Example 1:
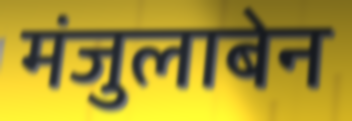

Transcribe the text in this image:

मंजुलाबेन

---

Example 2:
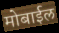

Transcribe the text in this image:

मोबाईल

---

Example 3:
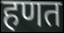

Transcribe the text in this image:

हणत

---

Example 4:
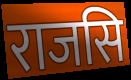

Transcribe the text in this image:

राजसि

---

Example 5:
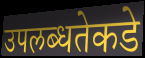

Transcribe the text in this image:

उपलब्धतेकडे